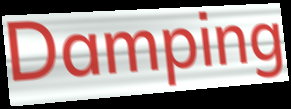
Damping